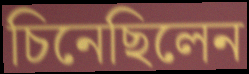
চিনেছিলেন